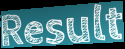
Result